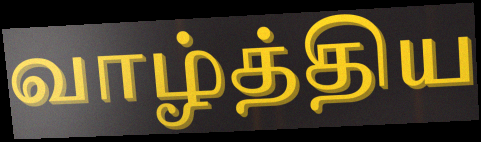
வாழ்த்திய